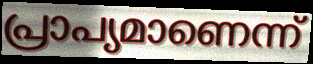
പ്രാപ്യമാണെന്ന്